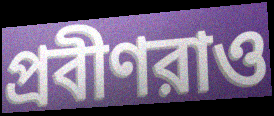
প্রবীণরাও